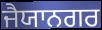
ਜੈਯਾਨਗਰ